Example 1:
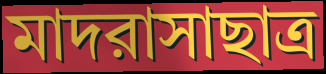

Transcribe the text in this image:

মাদরাসাছাত্র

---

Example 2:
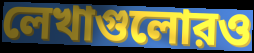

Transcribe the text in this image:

লেখাগুলোরও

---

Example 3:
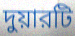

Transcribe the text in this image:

দুয়ারটি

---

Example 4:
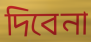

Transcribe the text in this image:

দিবেনা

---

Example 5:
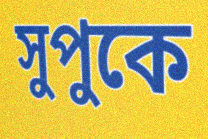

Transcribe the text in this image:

সুপুকে